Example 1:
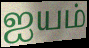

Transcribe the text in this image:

ஐயம்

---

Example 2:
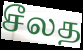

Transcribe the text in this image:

சீலத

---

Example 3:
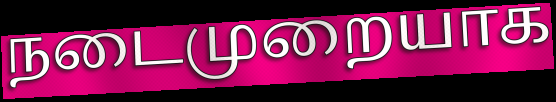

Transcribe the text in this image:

நடைமுறையாக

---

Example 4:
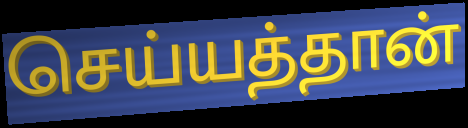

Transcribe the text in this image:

செய்யத்தான்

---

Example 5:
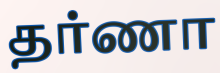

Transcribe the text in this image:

தர்ணா